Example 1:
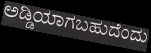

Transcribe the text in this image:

ಅಡ್ಡಿಯಾಗಬಹುದೆಂದು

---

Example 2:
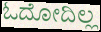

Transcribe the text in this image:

ಓದೋದಿಲ್ಲ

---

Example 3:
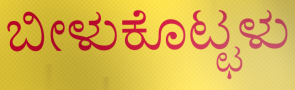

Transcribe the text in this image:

ಬೀಳುಕೊಟ್ಟಳು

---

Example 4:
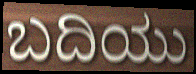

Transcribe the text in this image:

ಬದಿಯು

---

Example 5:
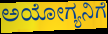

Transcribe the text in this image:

ಅಯೋಗ್ಯನಿಗೆ